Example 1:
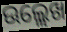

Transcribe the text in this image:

ଊଲ୍ଲେଖ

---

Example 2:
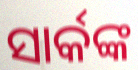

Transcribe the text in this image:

ସାର୍କଙ୍କ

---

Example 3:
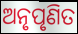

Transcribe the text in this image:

ଅନୃପୃଣିତ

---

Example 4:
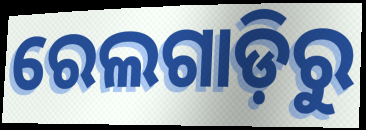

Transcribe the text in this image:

ରେଲଗାଡ଼ିରୁ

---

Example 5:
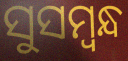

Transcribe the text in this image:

ସୁସମ୍ବନ୍ଧ